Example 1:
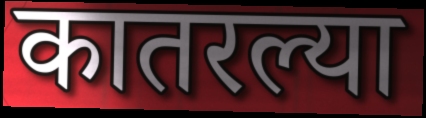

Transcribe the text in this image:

कातरल्या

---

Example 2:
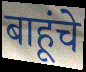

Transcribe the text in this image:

बाहूंचे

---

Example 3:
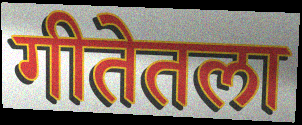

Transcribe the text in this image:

गीतेतला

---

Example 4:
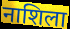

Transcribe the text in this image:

नाशिला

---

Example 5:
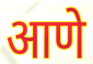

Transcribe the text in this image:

आणे